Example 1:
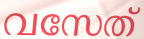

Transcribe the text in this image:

വസേത്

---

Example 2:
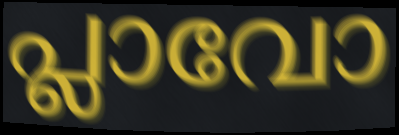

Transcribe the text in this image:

പ്ലാവോ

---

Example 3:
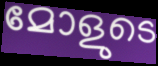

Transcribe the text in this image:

മോളുടെ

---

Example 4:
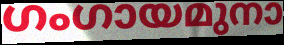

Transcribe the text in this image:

ഗംഗായമുനാ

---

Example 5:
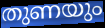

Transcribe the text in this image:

തുണയും